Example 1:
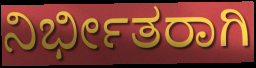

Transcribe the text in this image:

ನಿರ್ಭೀತರಾಗಿ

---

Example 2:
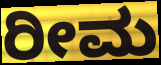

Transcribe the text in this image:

ರೀಮ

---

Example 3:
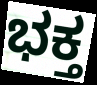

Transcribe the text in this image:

ಭಕ್ತ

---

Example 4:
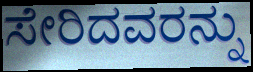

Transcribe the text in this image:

ಸೇರಿದವರನ್ನು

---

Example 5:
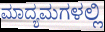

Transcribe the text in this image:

ಮಾದ್ಯಮಗಳಲ್ಲಿ